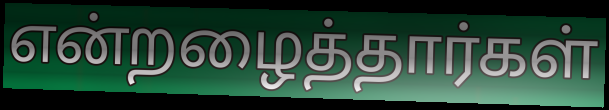
என்றழைத்தார்கள்